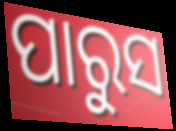
ପାରୁସ